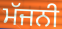
ਮੱਜਨੀ